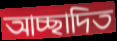
আচ্ছাদিত